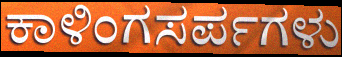
ಕಾಳಿಂಗಸರ್ಪಗಳು